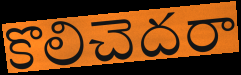
కొలిచెదరా